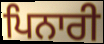
ਪਿਨਾਰੀ